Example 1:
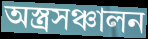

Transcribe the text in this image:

অস্ত্রসঞ্চালন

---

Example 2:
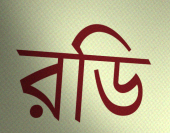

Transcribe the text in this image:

রডি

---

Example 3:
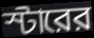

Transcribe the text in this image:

স্টারের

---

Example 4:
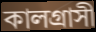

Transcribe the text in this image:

কালগ্রাসী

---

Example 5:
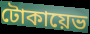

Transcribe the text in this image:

টোকায়েভ